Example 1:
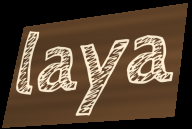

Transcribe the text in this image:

laya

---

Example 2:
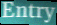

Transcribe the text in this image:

Entry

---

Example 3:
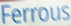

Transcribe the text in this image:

Ferrous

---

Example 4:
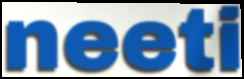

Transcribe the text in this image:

neeti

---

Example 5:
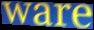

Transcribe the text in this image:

ware